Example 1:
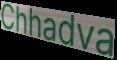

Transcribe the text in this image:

Chhadva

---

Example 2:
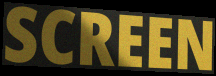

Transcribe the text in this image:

SCREEN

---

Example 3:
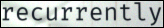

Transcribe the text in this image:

recurrently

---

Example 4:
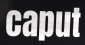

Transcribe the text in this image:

caput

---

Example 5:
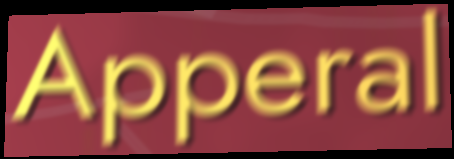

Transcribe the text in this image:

Apperal